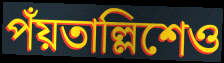
পঁয়তাল্লিশেও